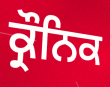
ਕ੍ਰੌਨਿਕ